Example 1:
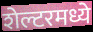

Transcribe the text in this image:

शेल्टरमध्ये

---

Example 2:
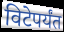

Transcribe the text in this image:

विटेपर्यंत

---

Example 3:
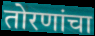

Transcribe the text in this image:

तोरणांचा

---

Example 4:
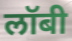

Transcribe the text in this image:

लॉबी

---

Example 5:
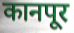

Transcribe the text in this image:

कानपूर